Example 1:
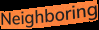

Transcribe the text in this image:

Neighboring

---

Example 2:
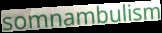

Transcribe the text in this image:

somnambulism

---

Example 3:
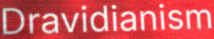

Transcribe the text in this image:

Dravidianism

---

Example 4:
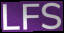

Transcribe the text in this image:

LFS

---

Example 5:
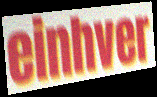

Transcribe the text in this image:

einhver